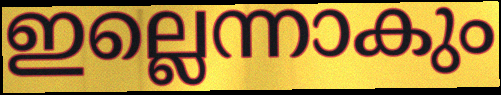
ഇല്ലെന്നാകും